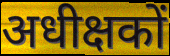
अधीक्षकों